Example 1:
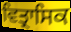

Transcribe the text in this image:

ਵਿਤ੍ਰਾਸਿਕ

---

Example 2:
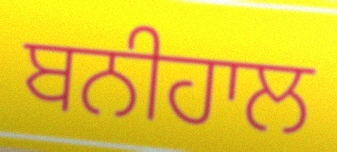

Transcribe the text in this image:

ਬਨੀਹਾਲ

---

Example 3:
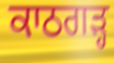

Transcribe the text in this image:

ਕਾਠਗਡ਼੍ਹ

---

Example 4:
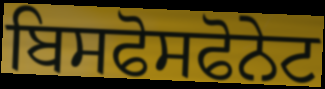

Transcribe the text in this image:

ਬਿਸਫੋਸਫੋਨੇਟ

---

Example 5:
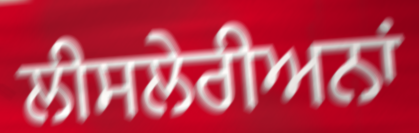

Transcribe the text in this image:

ਲੀਸਲੇਰੀਅਨਾਂ